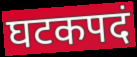
घटकपदं